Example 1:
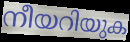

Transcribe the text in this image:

നീയറിയുക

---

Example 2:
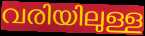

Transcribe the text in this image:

വരിയിലുള്ള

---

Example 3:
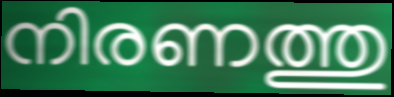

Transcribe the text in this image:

നിരണത്തു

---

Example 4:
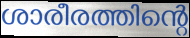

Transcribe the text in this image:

ശാരീരത്തിന്റെ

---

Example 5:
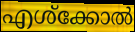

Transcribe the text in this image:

എശ്ക്കോൽ